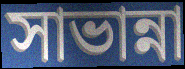
সাভান্না